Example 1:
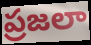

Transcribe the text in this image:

ప్రజలా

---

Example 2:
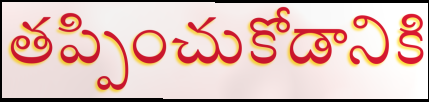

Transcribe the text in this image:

తప్పించుకోడానికి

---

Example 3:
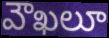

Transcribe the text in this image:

వౌఖలూ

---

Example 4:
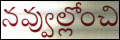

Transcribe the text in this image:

నవ్వుల్లోంచి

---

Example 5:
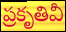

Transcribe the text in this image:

ప్రకృతివీ